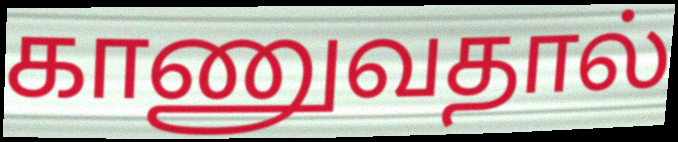
காணுவதால்